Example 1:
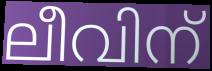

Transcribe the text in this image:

ലീവിന്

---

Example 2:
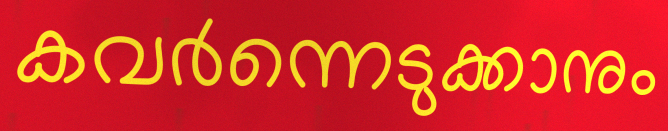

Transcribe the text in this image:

കവർന്നെടുക്കാനും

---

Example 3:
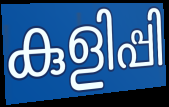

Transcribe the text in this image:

കുളിപ്പി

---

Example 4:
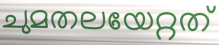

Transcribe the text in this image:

ചുമതലയേറ്റത്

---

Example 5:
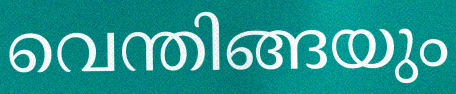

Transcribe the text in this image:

വെന്തിങ്ങയും